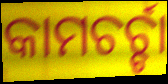
କାମଚର୍ଚ୍ଚା